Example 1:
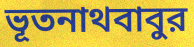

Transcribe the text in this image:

ভূতনাথবাবুর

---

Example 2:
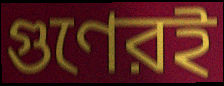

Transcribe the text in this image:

গুণেরই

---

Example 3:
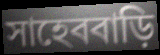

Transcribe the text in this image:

সাহেববাড়ি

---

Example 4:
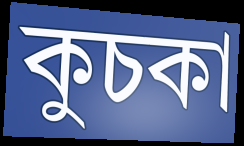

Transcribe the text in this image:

কুচকা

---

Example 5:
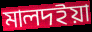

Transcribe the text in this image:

মালদইয়া